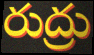
రుద్రు